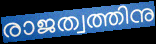
രാജത്വത്തിനു